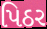
પિઠર